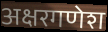
अक्षरगणेश